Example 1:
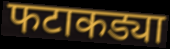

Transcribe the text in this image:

फटाकड्या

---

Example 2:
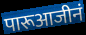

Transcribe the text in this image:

पारूआजीनं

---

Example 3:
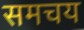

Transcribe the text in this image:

समचय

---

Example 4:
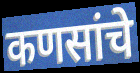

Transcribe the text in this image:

कणसांचे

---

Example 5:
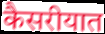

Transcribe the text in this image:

कैसरीयात